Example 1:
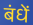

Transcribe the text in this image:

बंधें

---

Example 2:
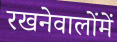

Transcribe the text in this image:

रखनेवालोंमें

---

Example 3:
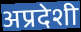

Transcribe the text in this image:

अप्रदेशी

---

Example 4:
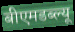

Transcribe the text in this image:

बीएमडब्ल्यू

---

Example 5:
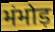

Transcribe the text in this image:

भंभोड़